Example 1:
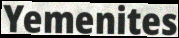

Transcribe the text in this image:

Yemenites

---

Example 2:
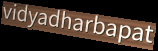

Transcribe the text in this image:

vidyadharbapat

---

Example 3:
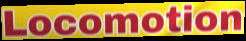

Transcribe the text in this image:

Locomotion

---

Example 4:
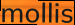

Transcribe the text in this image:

mollis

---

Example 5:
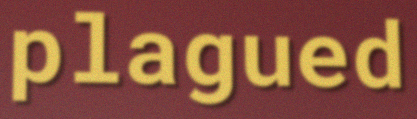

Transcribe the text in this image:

plagued